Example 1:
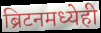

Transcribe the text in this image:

ब्रिटनमध्येही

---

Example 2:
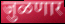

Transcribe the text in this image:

जुळणार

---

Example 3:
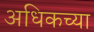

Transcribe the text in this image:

अधिकच्या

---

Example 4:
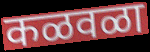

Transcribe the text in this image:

कळवळा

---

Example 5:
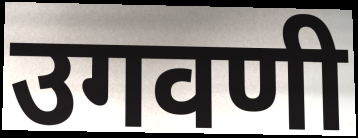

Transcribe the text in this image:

उगवणी